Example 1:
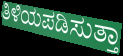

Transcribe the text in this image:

ತಿಳಿಯಪಡಿಸುತ್ತಾ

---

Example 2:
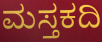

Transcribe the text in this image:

ಮಸ್ತಕದಿ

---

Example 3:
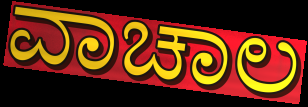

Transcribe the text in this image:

ವಾಚಾಲ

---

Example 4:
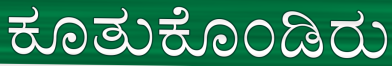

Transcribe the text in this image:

ಕೂತುಕೊಂಡಿರು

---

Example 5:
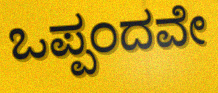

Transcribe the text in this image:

ಒಪ್ಪಂದವೇ